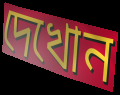
দেখোন